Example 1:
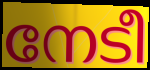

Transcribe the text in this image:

നേടീ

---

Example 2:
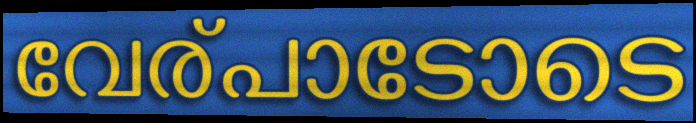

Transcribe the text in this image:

വേര്പാടോടെ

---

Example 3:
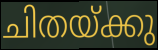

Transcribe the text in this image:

ചിതയ്ക്കു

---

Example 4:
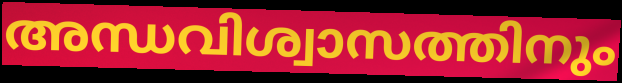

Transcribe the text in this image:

അന്ധവിശ്വാസത്തിനും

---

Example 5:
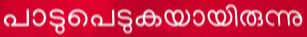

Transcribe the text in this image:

പാടുപെടുകയായിരുന്നു